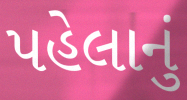
પહેલાનું